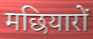
मछियारों